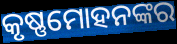
କୃଷ୍ଣମୋହନଙ୍କର